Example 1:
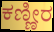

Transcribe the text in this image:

ಕಣ್ಣೀರ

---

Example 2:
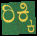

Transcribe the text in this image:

ರಿಕ್ಕಿ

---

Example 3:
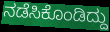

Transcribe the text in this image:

ನಡೆಸಿಕೊಂಡಿದ್ದು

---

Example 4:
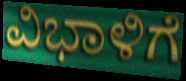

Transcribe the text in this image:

ವಿಭಾಳಿಗೆ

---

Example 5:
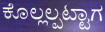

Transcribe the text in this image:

ಕೊಲ್ಲಲ್ಪಟ್ಟಾಗ